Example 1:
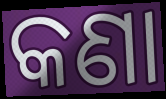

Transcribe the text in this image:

କଣା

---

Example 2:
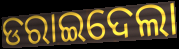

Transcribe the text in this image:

ଡରାଇଦେଲା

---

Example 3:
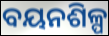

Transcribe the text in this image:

ବୟନଶିଳ୍ପ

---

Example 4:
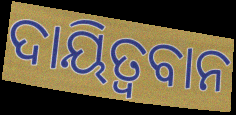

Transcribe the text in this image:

ଦାୟିତ୍ବବାନ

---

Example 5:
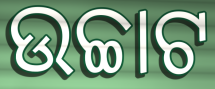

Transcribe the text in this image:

ଉଚ୍ଚାଟ